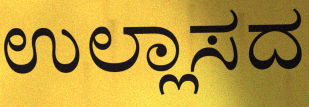
ಉಲ್ಲಾಸದ